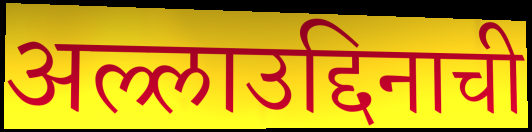
अल्लाउद्दिनाची